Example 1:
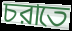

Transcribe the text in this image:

চরাতে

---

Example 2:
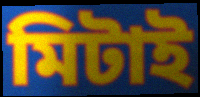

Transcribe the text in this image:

মিটাই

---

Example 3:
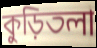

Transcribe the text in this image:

কুড়িতলা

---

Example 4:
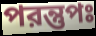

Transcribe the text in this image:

পরন্তুপঃ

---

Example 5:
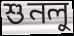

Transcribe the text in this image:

শুনলু